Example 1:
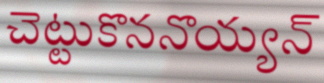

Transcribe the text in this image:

చెట్టుకొననొయ్యన్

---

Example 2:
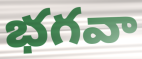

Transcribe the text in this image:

భగవా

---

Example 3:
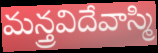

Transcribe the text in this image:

మన్త్రవిదేవాస్మి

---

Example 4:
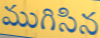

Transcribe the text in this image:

ముగిసిన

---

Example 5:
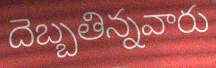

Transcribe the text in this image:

దెబ్బతిన్నవారు